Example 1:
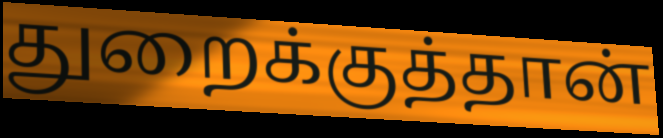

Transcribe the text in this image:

துறைக்குத்தான்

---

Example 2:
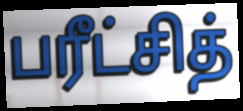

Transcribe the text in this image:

பரீட்சித்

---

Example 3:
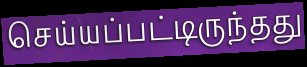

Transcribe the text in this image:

செய்யப்பட்டிருந்தது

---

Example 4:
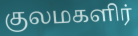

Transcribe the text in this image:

குலமகளிர்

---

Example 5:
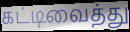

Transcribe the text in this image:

கட்டிவைத்து